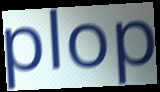
plop